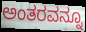
ಅಂತರವನ್ನೂ